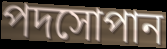
পদসোপান